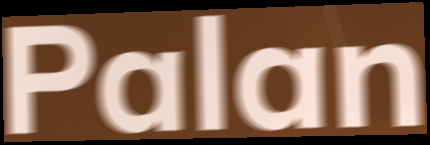
Palan